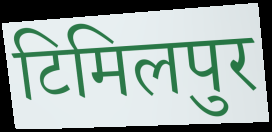
टिमिलपुर